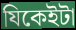
যিকেইটা